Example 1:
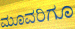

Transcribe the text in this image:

ಮೂವರಿಗೂ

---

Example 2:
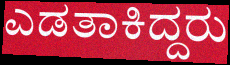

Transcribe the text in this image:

ಎಡತಾಕಿದ್ದರು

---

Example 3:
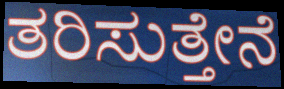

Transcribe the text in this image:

ತರಿಸುತ್ತೇನೆ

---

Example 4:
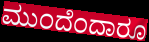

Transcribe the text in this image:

ಮುಂದೆಂದಾರೂ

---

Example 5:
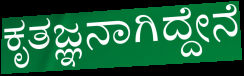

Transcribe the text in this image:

ಕೃತಜ್ಞನಾಗಿದ್ದೇನೆ